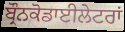
ਬ੍ਰੌਨਕੋਡਾਈਲੇਟਰਾਂ